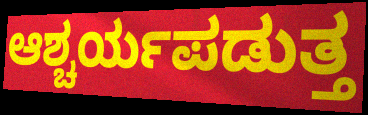
ಆಶ್ಚರ್ಯಪಡುತ್ತ